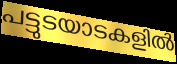
പട്ടുടയാടകളിൽ